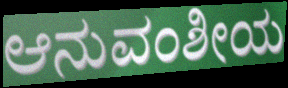
ಆನುವಂಶೀಯ